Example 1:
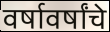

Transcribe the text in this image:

वर्षावर्षांचे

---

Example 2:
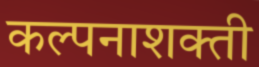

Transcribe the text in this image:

कल्पनाशक्ती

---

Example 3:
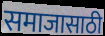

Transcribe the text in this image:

समाजासाठी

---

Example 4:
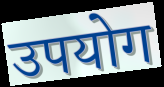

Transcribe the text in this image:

उपयोग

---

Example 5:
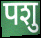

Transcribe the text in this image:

पशु